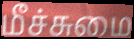
மீச்சுமை